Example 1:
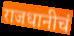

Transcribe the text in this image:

राजधानीचं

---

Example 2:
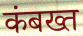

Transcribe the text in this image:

कंबख्त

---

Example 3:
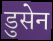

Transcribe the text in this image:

डुसेन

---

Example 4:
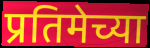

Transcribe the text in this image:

प्रतिमेच्या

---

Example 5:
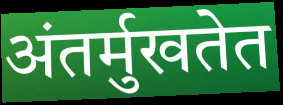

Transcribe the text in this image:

अंतर्मुखतेत